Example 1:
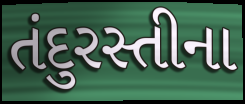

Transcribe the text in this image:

તંદુરસ્તીના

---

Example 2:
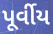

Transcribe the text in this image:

પૂર્વીય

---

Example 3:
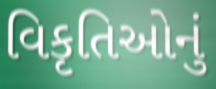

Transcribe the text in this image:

વિકૃતિઓનું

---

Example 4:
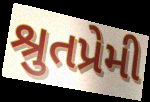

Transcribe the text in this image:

શ્રુતપ્રેમી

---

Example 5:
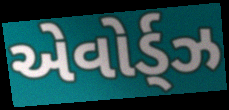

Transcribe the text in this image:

એવોર્ડ્ઝ